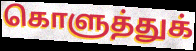
கொளுத்துக்